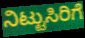
ನಿಟ್ಟುಸಿರಿಗೆ